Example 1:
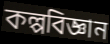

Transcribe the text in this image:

কল্পবিজ্ঞান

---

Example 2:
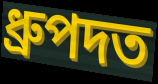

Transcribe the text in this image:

ধ্ৰুপদত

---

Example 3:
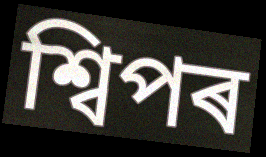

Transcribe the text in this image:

শ্বিপৰ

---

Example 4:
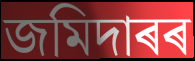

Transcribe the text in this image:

জমিদাৰৰ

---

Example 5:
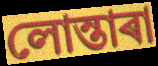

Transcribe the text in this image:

লোন্তাৰা